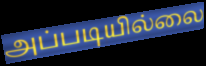
அப்படியில்லை